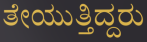
ತೇಯುತ್ತಿದ್ದರು